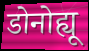
डोनोह्यू